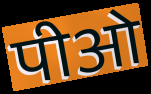
पीओ